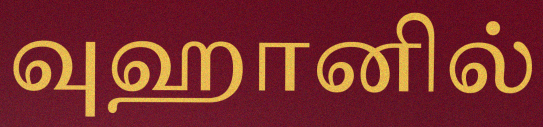
வுஹானில்